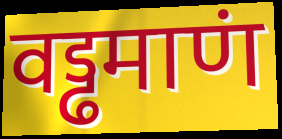
वड्ढमाणं